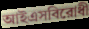
আইএসবিরোধী